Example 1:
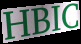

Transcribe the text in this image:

HBIC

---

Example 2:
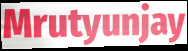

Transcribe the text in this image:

Mrutyunjay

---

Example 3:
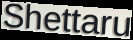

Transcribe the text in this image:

Shettaru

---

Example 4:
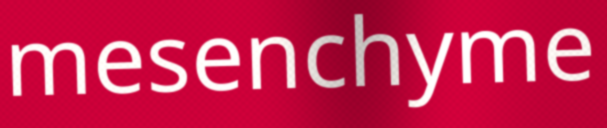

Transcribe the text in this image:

mesenchyme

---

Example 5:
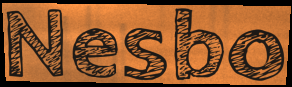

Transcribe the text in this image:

Nesbo